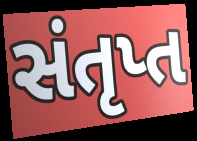
સંતૃપ્ત